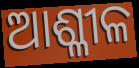
ଆଶ୍ଳୀଳ